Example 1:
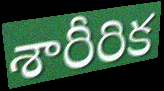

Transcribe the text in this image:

శారీరిక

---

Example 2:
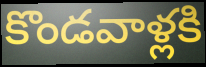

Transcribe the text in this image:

కొండవాళ్లకి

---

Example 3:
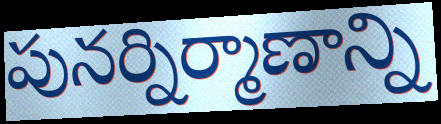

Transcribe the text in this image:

పునర్నిర్మాణాన్ని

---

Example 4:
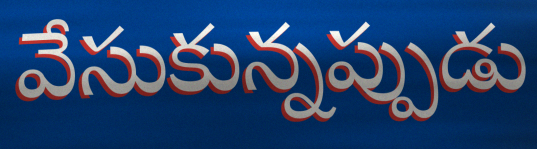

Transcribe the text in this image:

వేసుకున్నప్పుడు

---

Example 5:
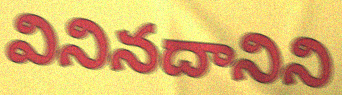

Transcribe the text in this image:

వినినదానిని